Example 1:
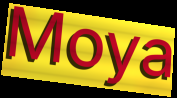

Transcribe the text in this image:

Moya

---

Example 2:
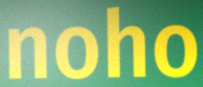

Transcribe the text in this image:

noho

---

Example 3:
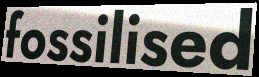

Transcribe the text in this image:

fossilised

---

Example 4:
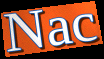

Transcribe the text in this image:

Nac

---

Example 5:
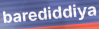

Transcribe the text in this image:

barediddiya